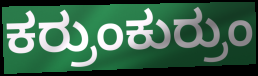
ಕರ್ರುಂಕುರ್ರುಂ